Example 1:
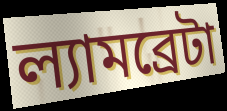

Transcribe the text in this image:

ল্যামব্রেটা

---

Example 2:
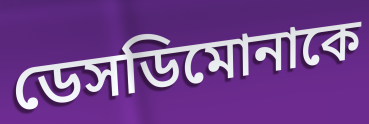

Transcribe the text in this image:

ডেসডিমোনাকে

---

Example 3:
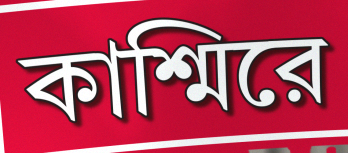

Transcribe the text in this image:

কাশ্মিরে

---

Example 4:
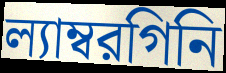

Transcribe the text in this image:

ল্যাম্বরগিনি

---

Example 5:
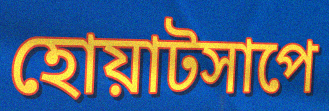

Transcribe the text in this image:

হোয়াটসাপে